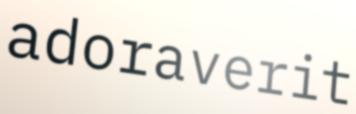
adoraverit